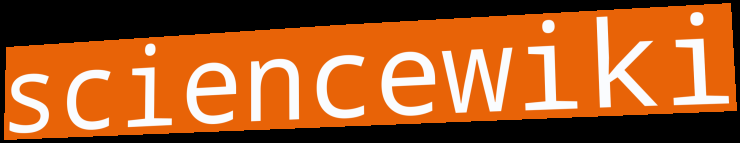
sciencewiki